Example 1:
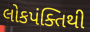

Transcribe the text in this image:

લોકપંક્તિથી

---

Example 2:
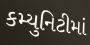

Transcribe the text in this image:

કમ્યુનિટીમાં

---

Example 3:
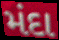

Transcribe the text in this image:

મંદા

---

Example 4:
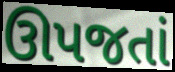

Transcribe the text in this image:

ઊપજતાં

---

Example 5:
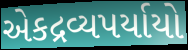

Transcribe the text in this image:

એકદ્રવ્યપર્યાયો